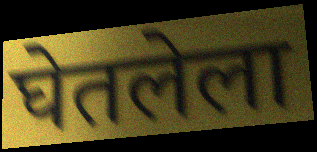
घेतलेला